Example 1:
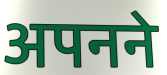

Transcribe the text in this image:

अपनने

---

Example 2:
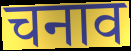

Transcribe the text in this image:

चनाव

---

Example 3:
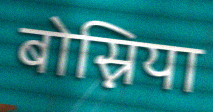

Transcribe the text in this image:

बोस्निया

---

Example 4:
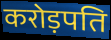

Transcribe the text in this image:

करोड़पति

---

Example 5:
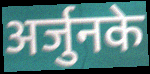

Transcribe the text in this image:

अर्जुनके